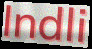
Indli